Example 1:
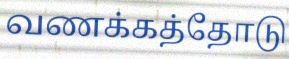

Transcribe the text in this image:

வணக்கத்தோடு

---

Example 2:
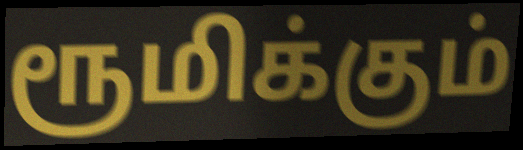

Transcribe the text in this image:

ரூமிக்கும்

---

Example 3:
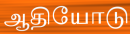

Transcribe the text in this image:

ஆதியோடு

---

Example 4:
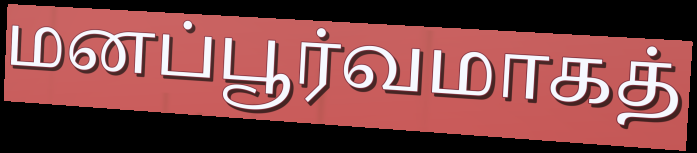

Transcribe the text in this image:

மனப்பூர்வமாகத்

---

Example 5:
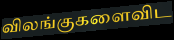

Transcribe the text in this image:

விலங்குகளைவிட